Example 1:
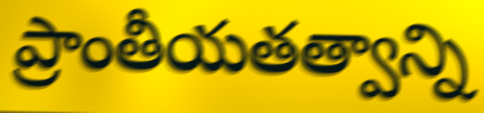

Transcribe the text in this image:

ప్రాంతీయతత్వాన్ని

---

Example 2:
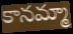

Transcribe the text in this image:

కానమ్మా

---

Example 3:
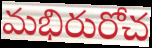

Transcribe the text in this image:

మభిరురోచ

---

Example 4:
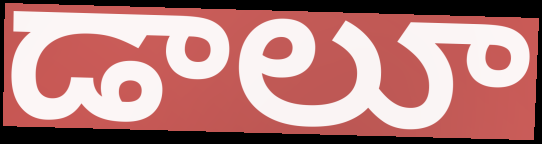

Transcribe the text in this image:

డాలూ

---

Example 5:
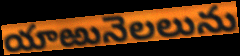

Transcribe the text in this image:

యాఱునెలలును